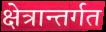
क्षेत्रान्तर्गत